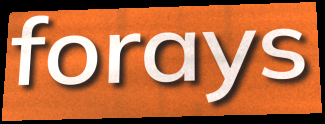
forays